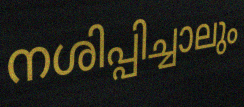
നശിപ്പിച്ചാലും